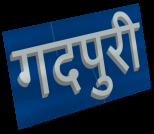
गदपुरी